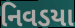
નિવડયા